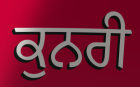
ਕੁਨਰੀ